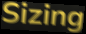
Sizing